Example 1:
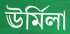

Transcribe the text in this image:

ঊর্মিলা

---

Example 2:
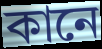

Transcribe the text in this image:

কানে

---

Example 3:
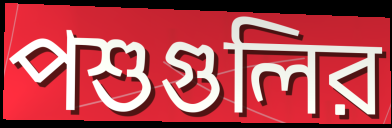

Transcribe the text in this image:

পশুগুলির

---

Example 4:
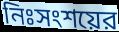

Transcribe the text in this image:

নিঃসংশয়ের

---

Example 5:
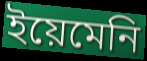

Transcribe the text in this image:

ইয়েমেনি